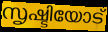
സൃഷ്ടിയോട്